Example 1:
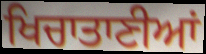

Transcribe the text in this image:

ਖਿਚਾਤਾਣੀਆਂ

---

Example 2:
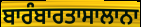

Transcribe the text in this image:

ਬਾਰੰਬਾਰਤਾਸਾਲਾਨਾ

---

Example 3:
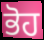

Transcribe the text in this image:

ਭੋਹ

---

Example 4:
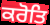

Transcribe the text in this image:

ਕਰੋਤਿ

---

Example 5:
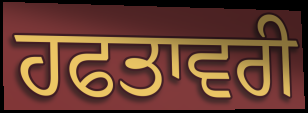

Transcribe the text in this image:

ਹਫਤਾਵਰੀ